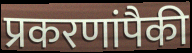
प्रकरणांपैकी